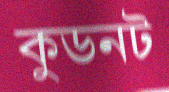
কুডনট